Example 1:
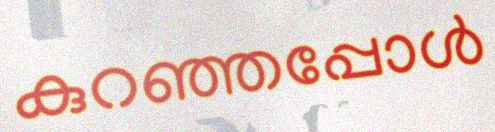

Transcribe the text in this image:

കുറഞ്ഞപ്പോൾ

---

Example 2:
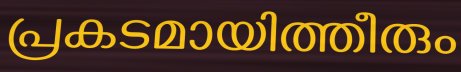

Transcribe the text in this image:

പ്രകടമായിത്തീരും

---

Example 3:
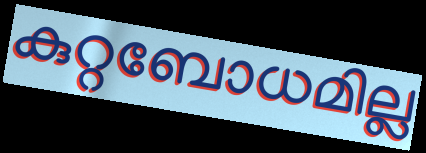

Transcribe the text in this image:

കുറ്റബോധമില്ല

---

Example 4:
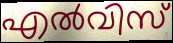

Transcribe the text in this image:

എൽവിസ്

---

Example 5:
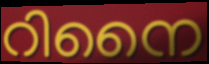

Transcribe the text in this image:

റിനൈ